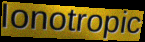
Ionotropic